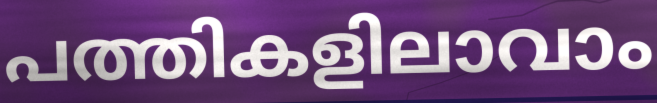
പത്തികളിലാവാം